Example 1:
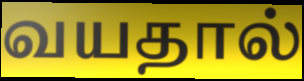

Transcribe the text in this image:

வயதால்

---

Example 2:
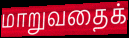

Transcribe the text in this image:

மாறுவதைக்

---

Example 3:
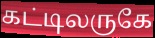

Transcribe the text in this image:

கட்டிலருகே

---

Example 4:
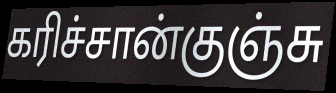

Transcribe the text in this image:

கரிச்சான்குஞ்சு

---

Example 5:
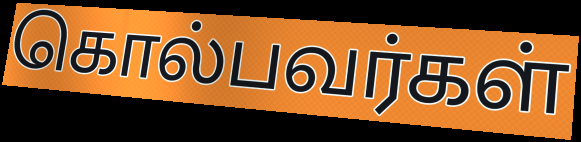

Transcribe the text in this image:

கொல்பவர்கள்